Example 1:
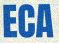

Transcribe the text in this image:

ECA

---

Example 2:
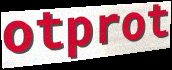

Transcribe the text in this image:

otprot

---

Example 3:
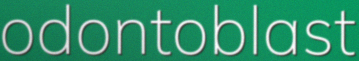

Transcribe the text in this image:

odontoblast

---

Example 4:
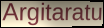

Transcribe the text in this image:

Argitaratu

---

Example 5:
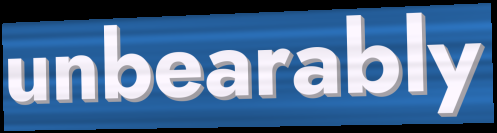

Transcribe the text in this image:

unbearably